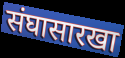
संघासारखा